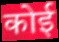
कोई